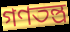
গণতন্ত্ৰ